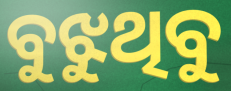
ବୁଝୁଥିବୁ